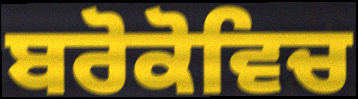
ਬਰੋਕੋਵਿਚ